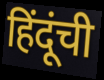
हिंदूंची